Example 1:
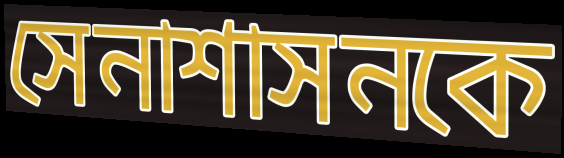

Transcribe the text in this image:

সেনাশাসনকে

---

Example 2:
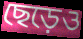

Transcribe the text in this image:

ছেড়েও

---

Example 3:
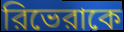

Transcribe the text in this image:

রিভেরাকে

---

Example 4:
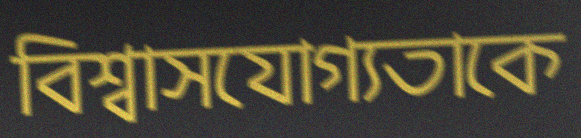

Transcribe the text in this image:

বিশ্বাসযোগ্যতাকে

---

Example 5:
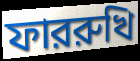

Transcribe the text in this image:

ফাররুখি